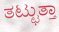
ತಟ್ಟುತ್ತಾ